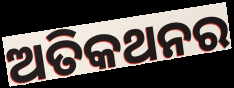
ଅତିକଥନର